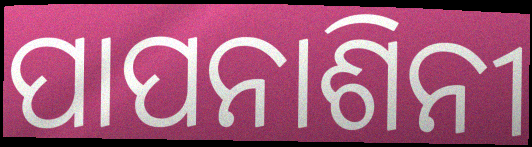
ପାପନାଶିନୀ